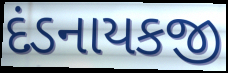
દંડનાયકજી